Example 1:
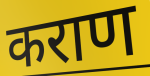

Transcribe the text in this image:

कराण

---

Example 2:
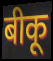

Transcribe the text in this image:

बीकू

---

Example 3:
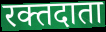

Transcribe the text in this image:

रक्तदाता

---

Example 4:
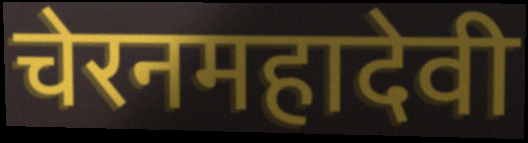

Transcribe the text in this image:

चेरनमहादेवी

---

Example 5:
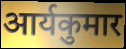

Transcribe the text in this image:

आर्यकुमार